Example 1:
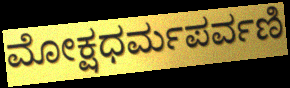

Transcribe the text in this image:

ಮೋಕ್ಷಧರ್ಮಪರ್ವಣಿ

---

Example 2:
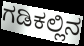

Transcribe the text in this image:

ಗಡಿಕಲ್ಲಿನ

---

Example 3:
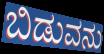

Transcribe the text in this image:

ಬಿಡುವನು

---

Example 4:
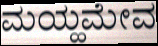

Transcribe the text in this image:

ಮಯ್ಹಮೇವ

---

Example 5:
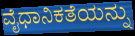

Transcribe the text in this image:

ವೈಧಾನಿಕತೆಯನ್ನು